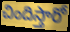
చిందిస్తారో